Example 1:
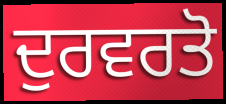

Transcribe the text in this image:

ਦੁਰਵਰਤੋ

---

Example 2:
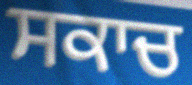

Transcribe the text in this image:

ਸਕਾਚ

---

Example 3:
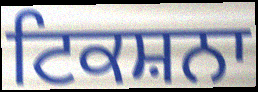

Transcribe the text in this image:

ਟਿਕਸ਼ਨਾ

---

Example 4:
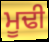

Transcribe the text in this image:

ਮੂਢੀ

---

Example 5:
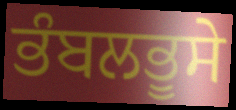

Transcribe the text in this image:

ਭੰਬਲਭੂਸੇ